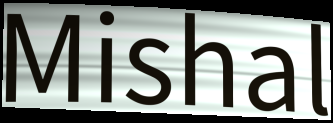
Mishal